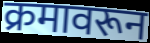
क्रमावरून